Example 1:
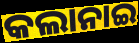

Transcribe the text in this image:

କଲାନାଇ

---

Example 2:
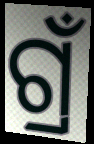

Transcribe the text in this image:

ଗ୍ରଁ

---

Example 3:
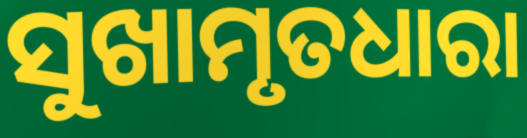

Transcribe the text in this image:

ସୁଖାମୃତଧାରା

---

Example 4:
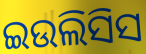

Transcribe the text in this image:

ଇଉଲିସିସ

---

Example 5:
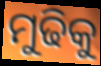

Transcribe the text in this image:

ମୁଢିକୁ